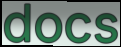
docs